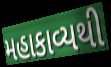
મહાકાવ્યથી